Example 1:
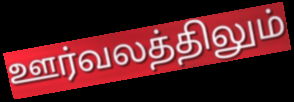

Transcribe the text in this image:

ஊர்வலத்திலும்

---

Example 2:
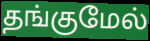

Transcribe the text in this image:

தங்குமேல்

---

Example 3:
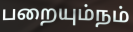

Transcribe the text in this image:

பறையும்நம்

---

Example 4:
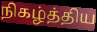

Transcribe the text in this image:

நிகழ்த்திய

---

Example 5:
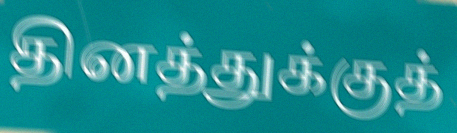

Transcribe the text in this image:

தினத்துக்குத்